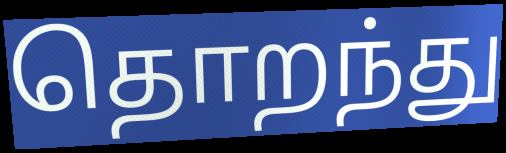
தொறந்து